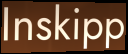
Inskipp